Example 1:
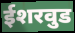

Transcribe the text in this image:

ईशरवुड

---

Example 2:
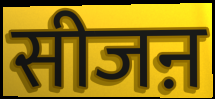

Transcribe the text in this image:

सीजऩ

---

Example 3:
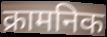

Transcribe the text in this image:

क्रामनिक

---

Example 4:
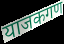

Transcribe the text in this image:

याजकगण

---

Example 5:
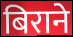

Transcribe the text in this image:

बिराने